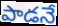
పాడనే